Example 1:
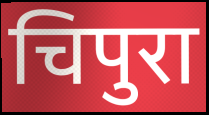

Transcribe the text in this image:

चिपुरा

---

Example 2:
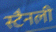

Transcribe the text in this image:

स्टैनली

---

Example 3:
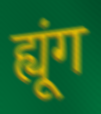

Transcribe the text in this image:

ह्यूंग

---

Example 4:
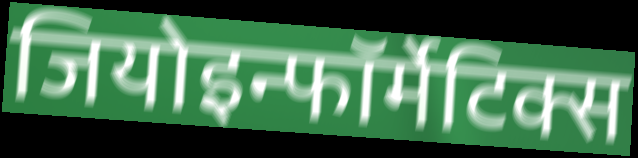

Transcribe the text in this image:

जियोइन्फॉर्मेटिक्स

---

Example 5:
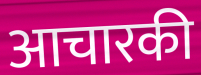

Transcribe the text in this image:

आचारकी